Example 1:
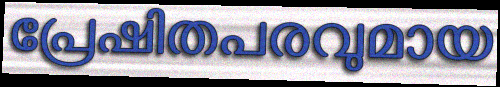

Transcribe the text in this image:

പ്രേഷിതപരവുമായ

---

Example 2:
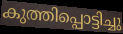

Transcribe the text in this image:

കുത്തിപ്പൊട്ടിച്ചു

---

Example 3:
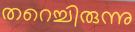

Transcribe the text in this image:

തറെച്ചിരുന്നു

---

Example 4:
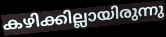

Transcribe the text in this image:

കഴിക്കില്ലായിരുന്നു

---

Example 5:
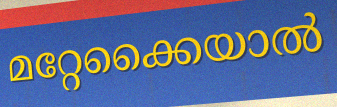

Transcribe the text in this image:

മറ്റേക്കൈയാൽ